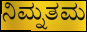
ನಿಮ್ನತಮ